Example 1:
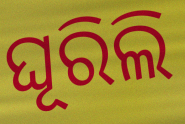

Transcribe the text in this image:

ଘୂରିଲି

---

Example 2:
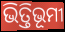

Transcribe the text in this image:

ଭିତ୍ତିଭୂମୀ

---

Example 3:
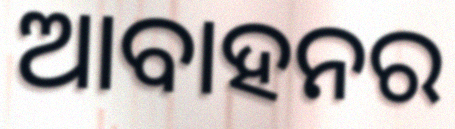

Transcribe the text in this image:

ଆବାହନର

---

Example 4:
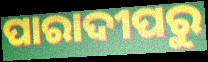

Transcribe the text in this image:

ପାରାଦୀପରୁ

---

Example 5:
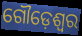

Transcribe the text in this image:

ଗୌଡ଼େଶ୍ୱର